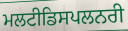
ਮਲਟੀਡਿਸਪਲਨਰੀ